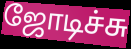
ஜோடிச்சு